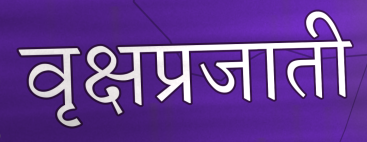
वृक्षप्रजाती